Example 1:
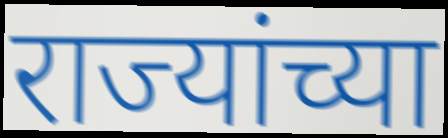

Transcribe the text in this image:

राज्यांच्या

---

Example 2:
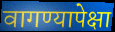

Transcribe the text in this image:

वागण्यापेक्षा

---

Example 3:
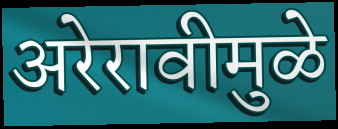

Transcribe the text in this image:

अरेरावीमुळे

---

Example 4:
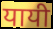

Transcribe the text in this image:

यायी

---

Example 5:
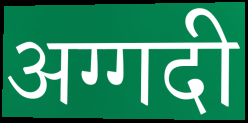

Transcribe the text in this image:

अग्गदी